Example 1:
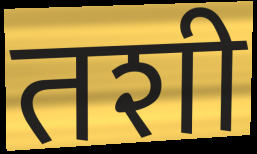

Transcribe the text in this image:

तशी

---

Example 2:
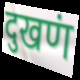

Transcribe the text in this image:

दुखणं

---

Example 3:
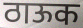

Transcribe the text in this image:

ठाऊक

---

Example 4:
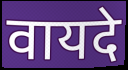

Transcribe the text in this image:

वायदे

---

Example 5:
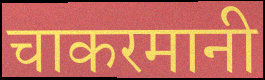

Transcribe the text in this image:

चाकरमानी